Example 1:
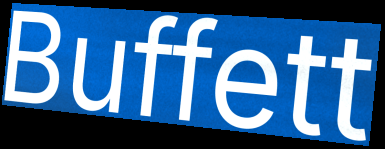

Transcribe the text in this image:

Buffett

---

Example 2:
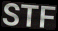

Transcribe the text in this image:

STF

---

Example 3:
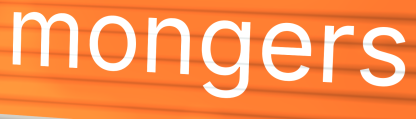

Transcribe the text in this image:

mongers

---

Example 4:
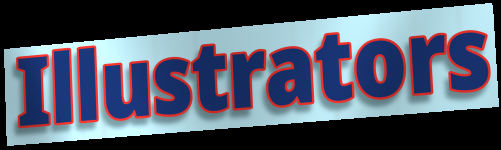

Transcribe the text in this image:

Illustrators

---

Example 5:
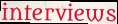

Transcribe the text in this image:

interviews